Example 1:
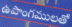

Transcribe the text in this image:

ఉపాంగములతో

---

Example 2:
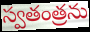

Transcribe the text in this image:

స్వతంత్రను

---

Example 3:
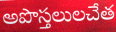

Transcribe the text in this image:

అపొస్తలులచేత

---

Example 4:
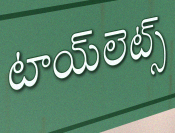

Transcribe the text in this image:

టాయ్‌లెట్స్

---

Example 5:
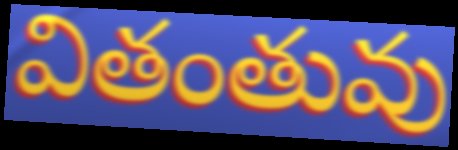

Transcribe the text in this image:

వితంతువు